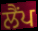
ਲੈਂਪ